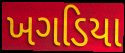
ખગડિયા